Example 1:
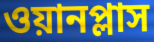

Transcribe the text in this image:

ওয়ানপ্লাস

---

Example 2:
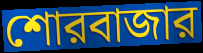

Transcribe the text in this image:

শোরবাজার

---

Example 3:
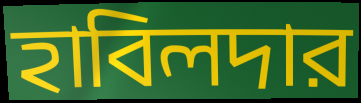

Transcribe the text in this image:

হাবিলদার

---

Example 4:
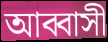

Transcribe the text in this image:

আব্বাসী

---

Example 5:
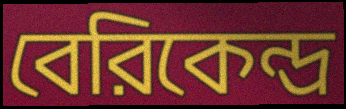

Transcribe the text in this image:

বেরিকেন্দ্র